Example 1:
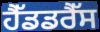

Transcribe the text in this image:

ਹੈੱਡਡਰੈੱਸ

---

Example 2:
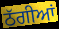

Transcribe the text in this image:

ਠੱਗੀਆਂ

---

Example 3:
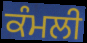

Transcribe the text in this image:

ਕੰਮਲੀ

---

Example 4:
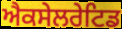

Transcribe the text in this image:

ਐਕਸੇਲਰੇਟਿਡ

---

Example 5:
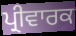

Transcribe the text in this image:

ਪ੍ਰੀਵਾਰਕ